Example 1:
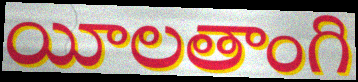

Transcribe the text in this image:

యీలతాంగి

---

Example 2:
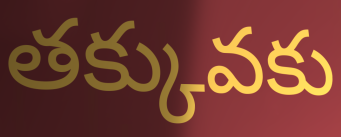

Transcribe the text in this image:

తక్కువకు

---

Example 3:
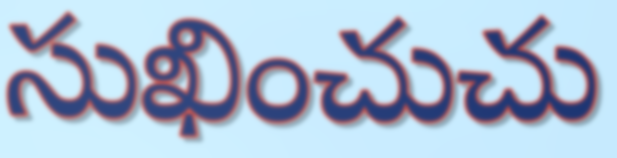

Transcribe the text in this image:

సుఖించుచు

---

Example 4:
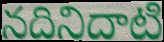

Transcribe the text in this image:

నదినిదాటి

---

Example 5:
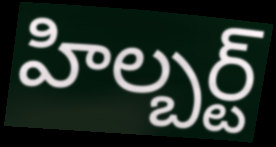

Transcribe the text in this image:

హిల్బర్ట్